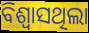
ବିଶ୍ୱାସଥିଲା